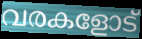
വരകളോട്